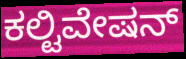
ಕಲ್ಟಿವೇಷನ್